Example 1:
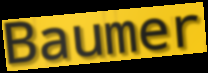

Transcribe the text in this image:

Baumer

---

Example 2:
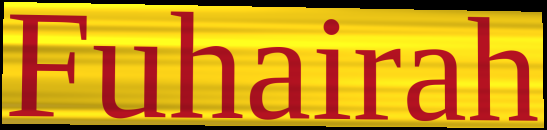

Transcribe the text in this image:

Fuhairah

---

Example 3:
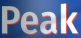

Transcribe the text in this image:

Peak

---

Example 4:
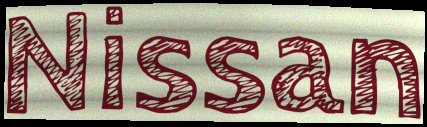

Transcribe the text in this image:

Nissan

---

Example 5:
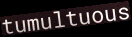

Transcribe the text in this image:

tumultuous